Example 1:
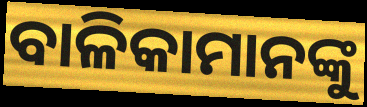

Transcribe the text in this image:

ବାଳିକାମାନଙ୍କୁ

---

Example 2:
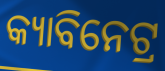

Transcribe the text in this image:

କ୍ୟାବିନେଟ୍ର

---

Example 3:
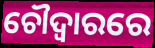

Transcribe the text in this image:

ଚୌଦ୍ୱାରରେ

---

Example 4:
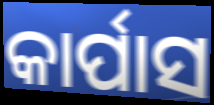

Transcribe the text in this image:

କାର୍ପାସ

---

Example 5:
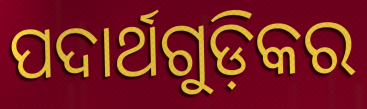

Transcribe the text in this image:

ପଦାର୍ଥଗୁଡ଼ିକର